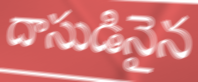
దాసుడినైన